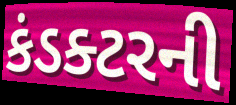
કંડક્ટરની